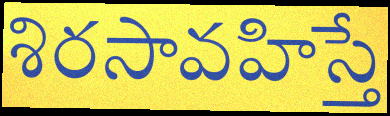
శిరసావహిస్తే